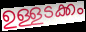
ഉള്ളടക്കം